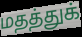
மதத்துக்